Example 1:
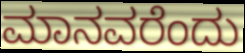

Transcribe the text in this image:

ಮಾನವರೆಂದು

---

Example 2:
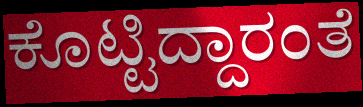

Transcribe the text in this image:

ಕೊಟ್ಟಿದ್ದಾರಂತೆ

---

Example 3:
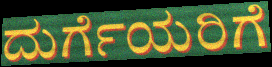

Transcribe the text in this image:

ದುರ್ಗೆಯರಿಗೆ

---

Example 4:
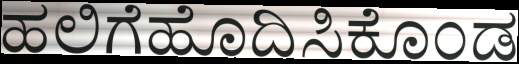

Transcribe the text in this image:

ಹಲಿಗೆಹೊದಿಸಿಕೊಂಡ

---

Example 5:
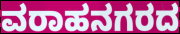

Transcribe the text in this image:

ವರಾಹನಗರದ